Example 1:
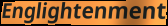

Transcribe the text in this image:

Englightenment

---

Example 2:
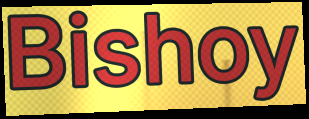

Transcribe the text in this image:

Bishoy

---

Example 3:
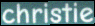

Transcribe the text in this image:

christie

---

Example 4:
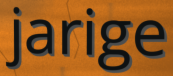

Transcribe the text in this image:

jarige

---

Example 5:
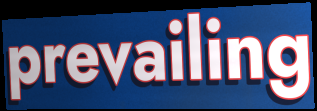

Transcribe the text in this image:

prevailing